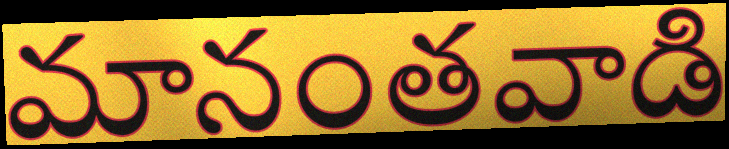
మానంతవాడి